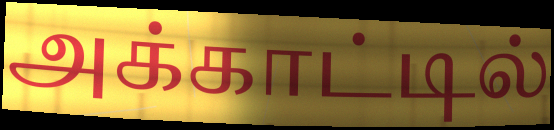
அக்காட்டில்